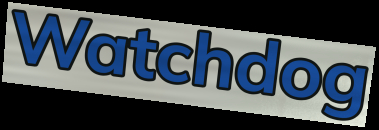
Watchdog